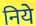
निये